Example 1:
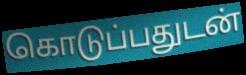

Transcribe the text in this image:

கொடுப்பதுடன்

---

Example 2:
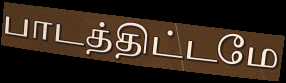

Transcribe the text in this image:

பாடத்திட்டமே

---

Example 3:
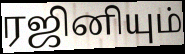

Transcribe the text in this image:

ரஜினியும்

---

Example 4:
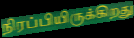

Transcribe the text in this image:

நிரப்பியிருக்கிறது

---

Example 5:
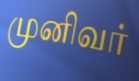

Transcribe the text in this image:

முனிவர்